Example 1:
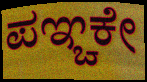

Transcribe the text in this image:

ಪಞ್ಚಕೇ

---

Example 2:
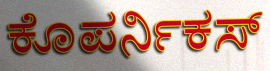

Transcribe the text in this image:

ಕೊಪರ್ನಿಕಸ್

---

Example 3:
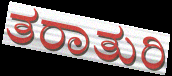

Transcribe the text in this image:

ತರಾತುರಿ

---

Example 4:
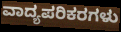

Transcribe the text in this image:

ವಾದ್ಯಪರಿಕರಗಳು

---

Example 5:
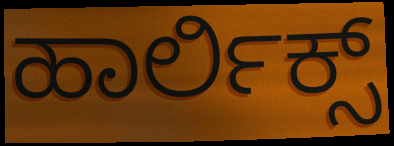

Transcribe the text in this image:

ಹಾರ್ಲಿಕ್ಸ್